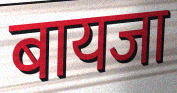
बायजा